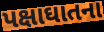
પક્ષાઘાતના